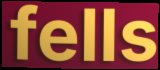
fells